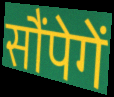
सौंपेगें